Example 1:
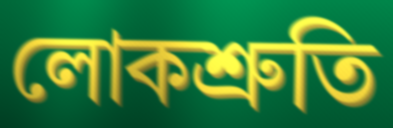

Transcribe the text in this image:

লোকশ্ৰুতি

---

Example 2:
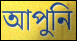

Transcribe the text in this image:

আপুনি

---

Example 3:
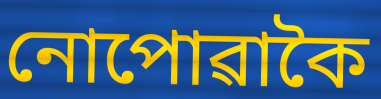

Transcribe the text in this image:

নোপোৱাকৈ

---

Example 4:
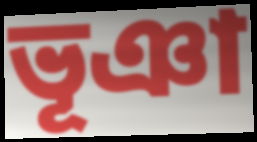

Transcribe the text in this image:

ভূঞা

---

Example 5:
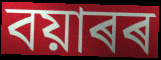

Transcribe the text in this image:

বয়াৰৰ